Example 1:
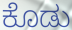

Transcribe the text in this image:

ಕೊಡು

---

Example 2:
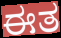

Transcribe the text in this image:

ಈತ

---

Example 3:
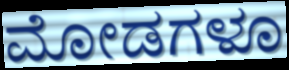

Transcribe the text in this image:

ಮೋಡಗಳೂ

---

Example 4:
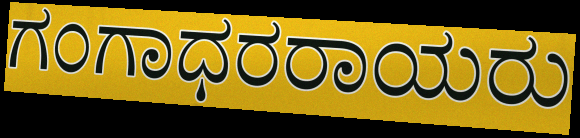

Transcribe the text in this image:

ಗಂಗಾಧರರಾಯರು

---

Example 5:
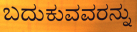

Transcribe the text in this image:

ಬದುಕುವವರನ್ನು